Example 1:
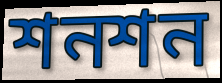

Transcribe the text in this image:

শনশন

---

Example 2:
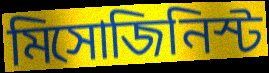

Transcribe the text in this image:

মিসোজিনিস্ট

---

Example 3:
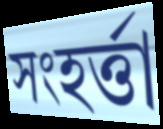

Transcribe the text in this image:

সংহর্ত্তা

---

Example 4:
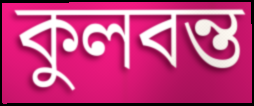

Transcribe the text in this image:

কুলবন্ত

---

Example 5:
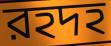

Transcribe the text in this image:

রহদহ